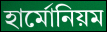
হার্মোনিয়ম